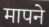
मापने